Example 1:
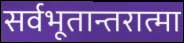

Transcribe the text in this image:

सर्वभूतान्तरात्मा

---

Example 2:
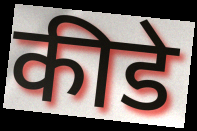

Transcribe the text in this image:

कीडे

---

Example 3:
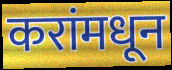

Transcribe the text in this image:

करांमधून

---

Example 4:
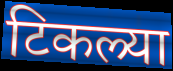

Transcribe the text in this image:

टिकल्या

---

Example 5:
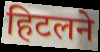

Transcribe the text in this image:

हिटलने